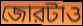
জোরটাও